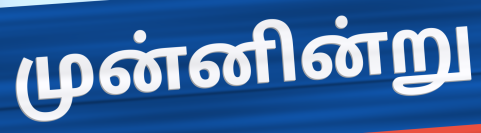
முன்னின்று